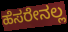
ಹೆಸರೇನಲ್ಲ